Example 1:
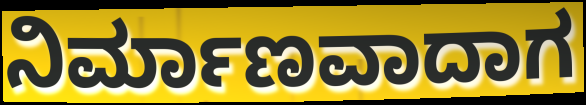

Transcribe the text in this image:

ನಿರ್ಮಾಣವಾದಾಗ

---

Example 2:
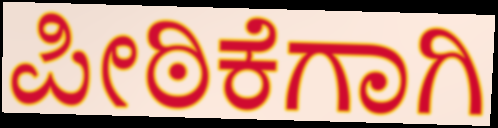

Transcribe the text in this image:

ಪೀಠಿಕೆಗಾಗಿ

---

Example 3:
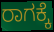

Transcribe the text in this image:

ರಾಗಕ್ಕೆ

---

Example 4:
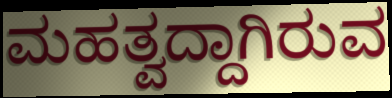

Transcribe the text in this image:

ಮಹತ್ವದ್ದಾಗಿರುವ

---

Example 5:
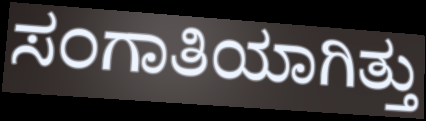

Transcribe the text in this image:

ಸಂಗಾತಿಯಾಗಿತ್ತು